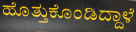
ಹೊತ್ತುಕೊಂಡಿದ್ದಾಳೆ